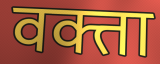
वक्ता